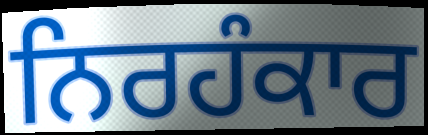
ਨਿਰਹੰਕਾਰ